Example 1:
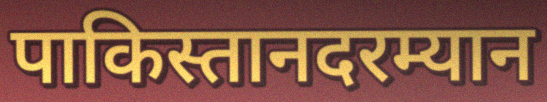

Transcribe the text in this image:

पाकिस्तानदरम्यान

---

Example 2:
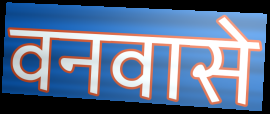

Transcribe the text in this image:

वनवासे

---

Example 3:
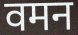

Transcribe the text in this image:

वमन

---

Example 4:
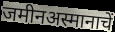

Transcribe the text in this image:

जमीनअस्मानाचें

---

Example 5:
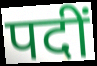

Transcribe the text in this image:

पदीं